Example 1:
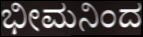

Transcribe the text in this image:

ಭೀಮನಿಂದ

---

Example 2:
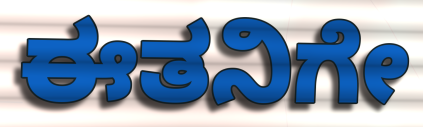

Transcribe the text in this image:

ಈತನಿಗೇ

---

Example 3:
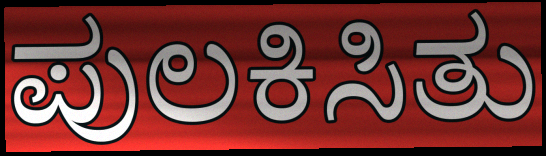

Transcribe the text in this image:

ಪುಲಕಿಸಿತು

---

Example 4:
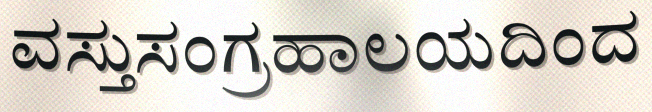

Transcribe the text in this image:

ವಸ್ತುಸಂಗ್ರಹಾಲಯದಿಂದ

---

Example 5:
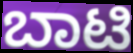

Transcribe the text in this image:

ಬಾಟಿ